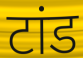
टांड